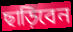
ছাড়িবেন